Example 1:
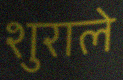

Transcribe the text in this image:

शुराले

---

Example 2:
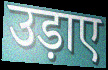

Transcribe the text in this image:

उड़ाए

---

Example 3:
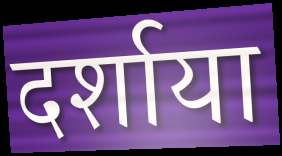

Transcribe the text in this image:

दर्शाया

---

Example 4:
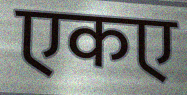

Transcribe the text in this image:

एकए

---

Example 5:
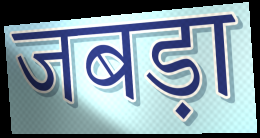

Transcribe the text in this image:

जबड़ा